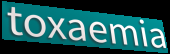
toxaemia